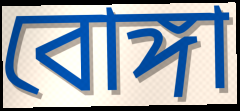
বোঙ্গা